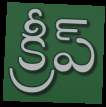
క్రీప్